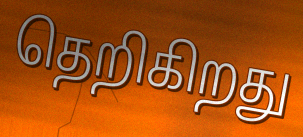
தெறிகிறது